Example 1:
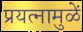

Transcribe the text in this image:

प्रयत्नामुळें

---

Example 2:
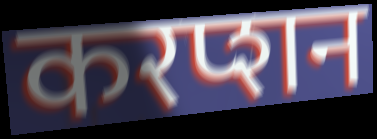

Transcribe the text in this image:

करप्शन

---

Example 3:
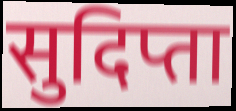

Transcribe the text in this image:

सुदिप्ता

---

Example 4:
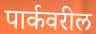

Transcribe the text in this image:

पार्कवरील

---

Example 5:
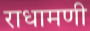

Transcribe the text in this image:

राधामणी